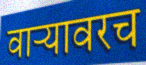
वाऱ्यावरच